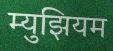
म्युझियम